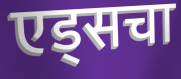
एड्सचा